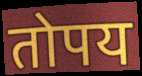
तोपय